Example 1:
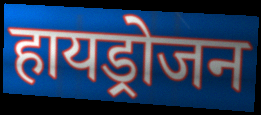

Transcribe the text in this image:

हायड्रोजन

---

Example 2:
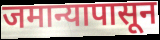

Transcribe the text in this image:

जमान्यापासून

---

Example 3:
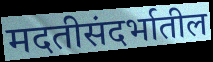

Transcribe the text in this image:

मदतीसंदर्भातील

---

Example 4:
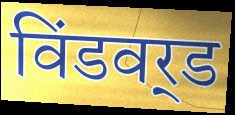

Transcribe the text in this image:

विंडवर्ड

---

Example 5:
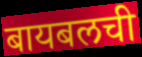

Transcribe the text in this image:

बायबलची